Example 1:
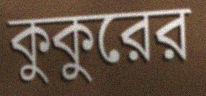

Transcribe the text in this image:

কুকুরের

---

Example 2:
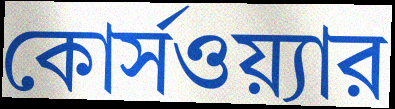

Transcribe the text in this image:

কোর্সওয়্যার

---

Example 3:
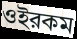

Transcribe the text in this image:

ওইরকম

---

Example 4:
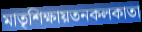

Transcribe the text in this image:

মাতৃশিক্ষায়তনকলকাতা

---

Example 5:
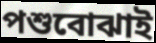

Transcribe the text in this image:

পশুবোঝাই